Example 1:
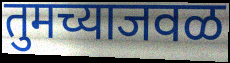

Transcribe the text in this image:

तुमच्याजवळ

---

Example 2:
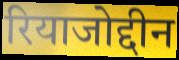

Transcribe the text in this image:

रियाजोद्दीन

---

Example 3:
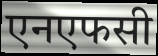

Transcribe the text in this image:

एनएफसी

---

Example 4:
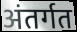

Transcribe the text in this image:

अंतर्गत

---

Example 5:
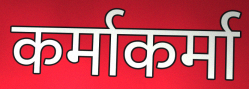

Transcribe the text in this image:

कर्माकर्मा